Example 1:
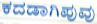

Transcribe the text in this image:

ಕದಡಾಗಿಪುವು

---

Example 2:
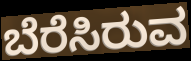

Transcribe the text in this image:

ಬೆರೆಸಿರುವ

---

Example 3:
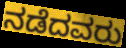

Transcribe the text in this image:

ನಡೆದವರು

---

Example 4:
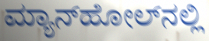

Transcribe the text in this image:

ಮ್ಯಾನ್‌ಹೋಲ್‌ನಲ್ಲಿ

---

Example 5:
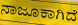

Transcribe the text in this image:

ನಾಜೂಕಾಗಿದೆ